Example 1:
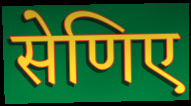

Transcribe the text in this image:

सेणिए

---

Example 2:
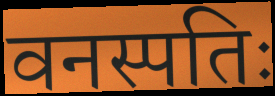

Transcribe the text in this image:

वनस्पतिः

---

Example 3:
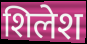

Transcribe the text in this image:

शिलेश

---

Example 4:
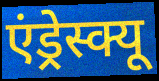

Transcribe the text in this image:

एंड्रेस्क्यू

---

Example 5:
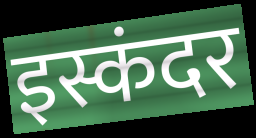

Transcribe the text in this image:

इस्कंदर